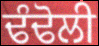
ਢੰਢੋਲੀ